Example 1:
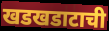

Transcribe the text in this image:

खडखडाटाची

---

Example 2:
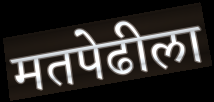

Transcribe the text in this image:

मतपेढीला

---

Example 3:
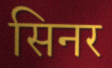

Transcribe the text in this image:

सिनर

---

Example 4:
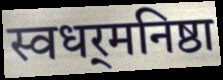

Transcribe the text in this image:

स्वधर्मनिष्ठा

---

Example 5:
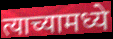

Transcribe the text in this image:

त्याच्यामध्ये